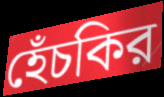
হেঁচকির